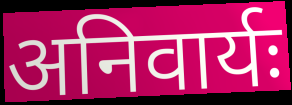
अनिवार्यः